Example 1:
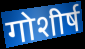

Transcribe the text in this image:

गोशीर्ष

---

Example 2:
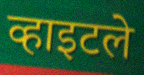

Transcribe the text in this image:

व्हाइटले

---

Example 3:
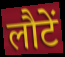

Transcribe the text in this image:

लौटें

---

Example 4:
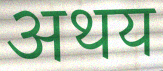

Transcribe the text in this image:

अथय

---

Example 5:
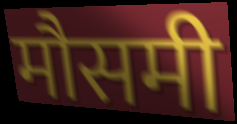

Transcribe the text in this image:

मौसमी